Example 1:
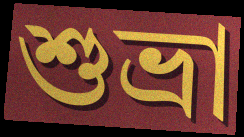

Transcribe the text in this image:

শুভ্রা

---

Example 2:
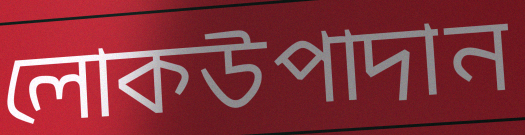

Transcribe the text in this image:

লোকউপাদান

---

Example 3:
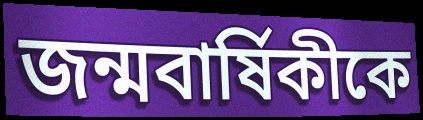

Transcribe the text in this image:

জন্মবার্ষিকীকে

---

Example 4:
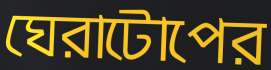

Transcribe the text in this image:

ঘেরাটোপের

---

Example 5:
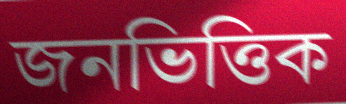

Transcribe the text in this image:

জনভিত্তিক